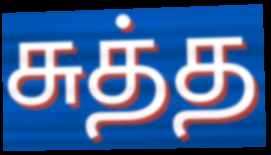
சுத்த